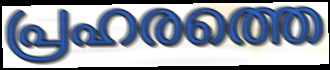
പ്രഹരത്തെ